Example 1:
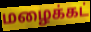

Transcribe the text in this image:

மழைக்கட்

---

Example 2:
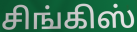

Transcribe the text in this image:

சிங்கிஸ்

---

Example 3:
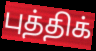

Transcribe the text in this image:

புத்திக்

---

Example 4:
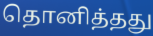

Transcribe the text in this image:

தொனித்தது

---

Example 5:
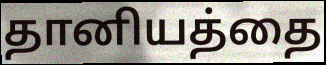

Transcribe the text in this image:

தானியத்தை